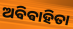
ଅଵିଵାହିତା